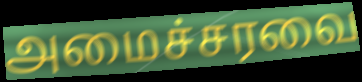
அமைச்சரவை